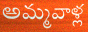
అమ్మవాళ్ల